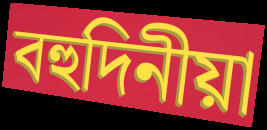
বহুদিনীয়া